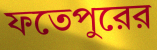
ফতেপুরের